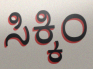
ಸಿಕ್ಕಿಂ